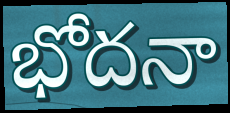
భోదనా